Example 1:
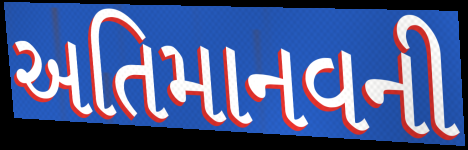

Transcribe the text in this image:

અતિમાનવની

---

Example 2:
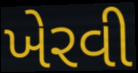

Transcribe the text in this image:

ખેરવી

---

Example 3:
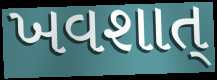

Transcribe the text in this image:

ખવશાત્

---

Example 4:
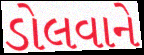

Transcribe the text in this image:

ડોલવાને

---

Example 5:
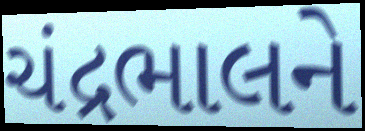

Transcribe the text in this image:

ચંદ્રભાલને